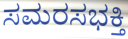
ಸಮರಸಭಕ್ತಿ